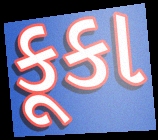
કૂકા